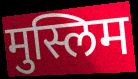
मुस्लिम